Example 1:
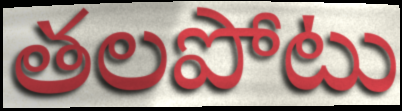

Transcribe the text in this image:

తలపోటు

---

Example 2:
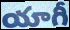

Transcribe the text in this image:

యాగీ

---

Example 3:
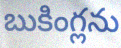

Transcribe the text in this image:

బుకింగ్లను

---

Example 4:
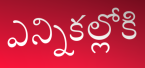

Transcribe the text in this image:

ఎన్నికల్లోకి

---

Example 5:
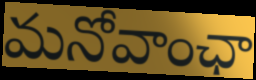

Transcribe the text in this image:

మనోవాంఛా